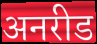
अनरीड